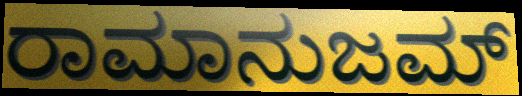
ರಾಮಾನುಜಮ್